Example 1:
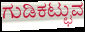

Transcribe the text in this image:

ಗುಡಿಕಟ್ಟುವ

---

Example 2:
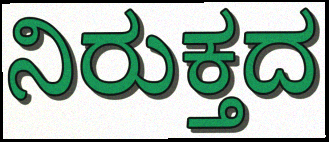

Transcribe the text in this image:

ನಿರುಕ್ತದ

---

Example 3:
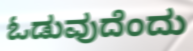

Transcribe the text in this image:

ಓಡುವುದೆಂದು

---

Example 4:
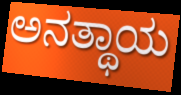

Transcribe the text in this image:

ಅನತ್ಥಾಯ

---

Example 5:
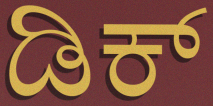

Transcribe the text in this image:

ಡಿಕ್